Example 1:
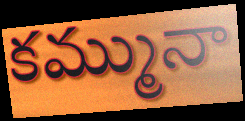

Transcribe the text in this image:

కమ్మునా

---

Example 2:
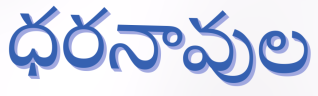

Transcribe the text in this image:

ధరనావుల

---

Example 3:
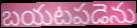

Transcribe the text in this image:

బయటపడెను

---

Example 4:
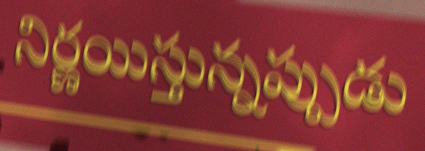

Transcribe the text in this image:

నిర్ణయిస్తున్నప్పుడు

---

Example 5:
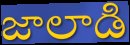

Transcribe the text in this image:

జాలాడి